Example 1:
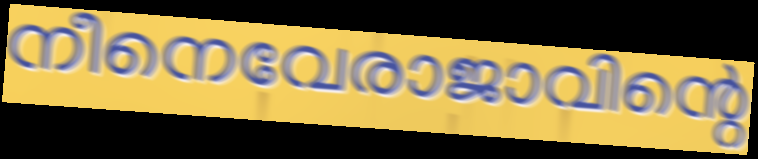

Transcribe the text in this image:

നീനെവേരാജാവിന്റെ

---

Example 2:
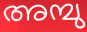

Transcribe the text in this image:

അമ്പു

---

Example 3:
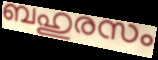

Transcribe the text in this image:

ബഹുരസം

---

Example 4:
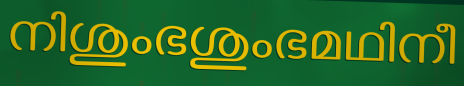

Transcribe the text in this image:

നിശുംഭശുംഭമഥിനീ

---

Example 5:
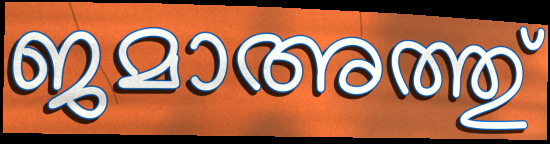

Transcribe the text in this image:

ജമാഅത്തു്